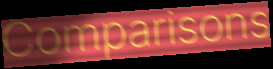
Comparisons